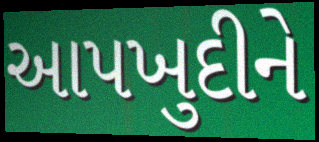
આપખુદીને